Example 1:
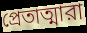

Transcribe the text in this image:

প্রেতাত্মারা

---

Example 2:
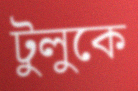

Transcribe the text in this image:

টুলুকে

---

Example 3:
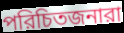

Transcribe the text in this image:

পরিচিতজনারা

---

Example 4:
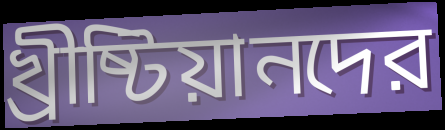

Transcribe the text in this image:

খ্রীষ্টিয়ানদের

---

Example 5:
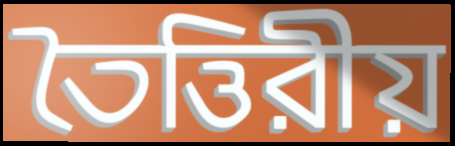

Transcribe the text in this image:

তৈত্তিরীয়